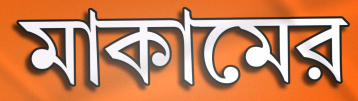
মাকামের